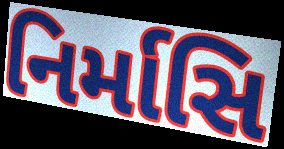
નિર્માસિ